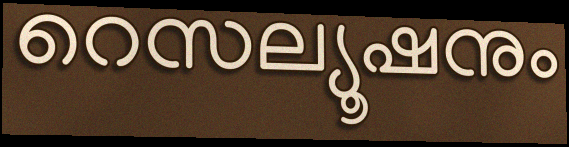
റെസല്യൂഷനും